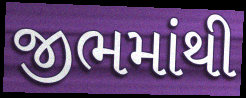
જીભમાંથી